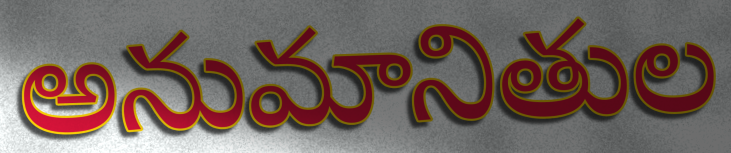
అనుమానితుల